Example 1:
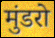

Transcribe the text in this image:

मुंडरो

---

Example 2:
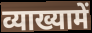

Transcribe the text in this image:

व्याख्यामें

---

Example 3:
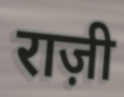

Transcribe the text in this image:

राज़ी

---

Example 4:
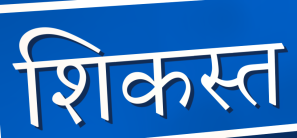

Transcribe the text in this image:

शिकस्त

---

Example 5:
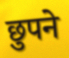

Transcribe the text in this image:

छुपने